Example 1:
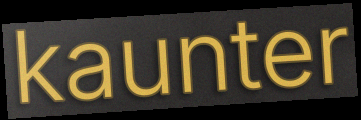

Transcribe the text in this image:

kaunter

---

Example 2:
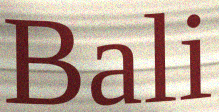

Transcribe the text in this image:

Bali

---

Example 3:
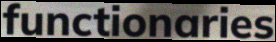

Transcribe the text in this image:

functionaries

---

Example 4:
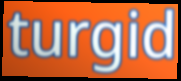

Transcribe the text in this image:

turgid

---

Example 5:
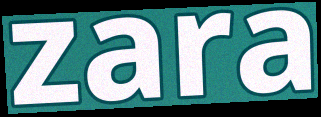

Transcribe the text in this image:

zara